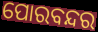
ପୋରବନ୍ଦର